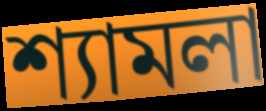
শ্যামলা